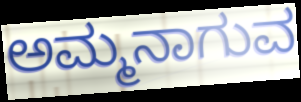
ಅಮ್ಮನಾಗುವ